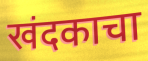
खंदकाचा